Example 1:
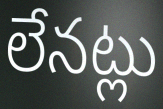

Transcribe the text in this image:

లేనట్లు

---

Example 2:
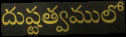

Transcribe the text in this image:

దుష్టత్వములో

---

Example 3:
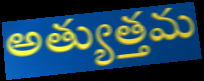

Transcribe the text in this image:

అత్యుత్తమ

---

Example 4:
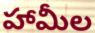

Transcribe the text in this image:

హామీల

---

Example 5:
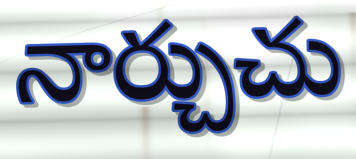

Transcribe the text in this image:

నార్చుచు